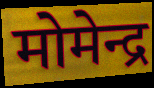
मोमेन्द्र